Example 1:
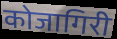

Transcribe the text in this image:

कोजागिरी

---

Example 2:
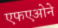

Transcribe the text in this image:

एफएओने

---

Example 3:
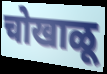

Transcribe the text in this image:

चोखाळू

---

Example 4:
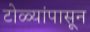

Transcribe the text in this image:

टोळ्यांपासून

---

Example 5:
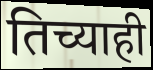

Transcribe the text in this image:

तिच्याही